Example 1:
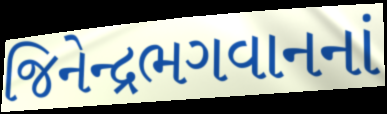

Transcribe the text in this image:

જિનેન્દ્રભગવાનનાં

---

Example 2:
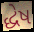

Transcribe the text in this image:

દ્ધેષ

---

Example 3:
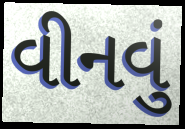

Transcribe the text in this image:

વીનવું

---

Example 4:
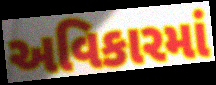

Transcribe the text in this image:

અવિકારમાં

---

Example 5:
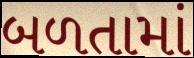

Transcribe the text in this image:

બળતામાં